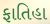
ફાતિહા